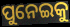
ପୁନେଇକୁ